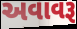
અવાવરૂ